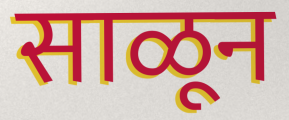
साळून